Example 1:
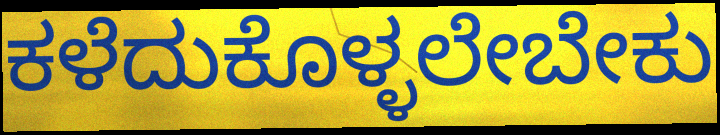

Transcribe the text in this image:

ಕಳೆದುಕೊಳ್ಳಲೇಬೇಕು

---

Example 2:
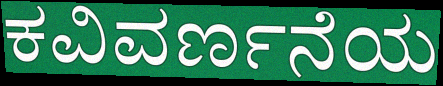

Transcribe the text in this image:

ಕವಿವರ್ಣನೆಯ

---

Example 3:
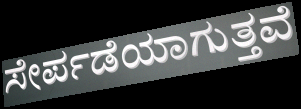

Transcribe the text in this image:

ಸೇರ್ಪಡೆಯಾಗುತ್ತವೆ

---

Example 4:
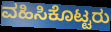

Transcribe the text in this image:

ವಹಿಸಿಕೊಟ್ಟರು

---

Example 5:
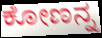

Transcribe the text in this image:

ಕೋಣನ್ನ